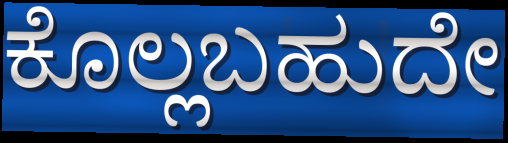
ಕೊಲ್ಲಬಹುದೇ